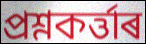
প্ৰশ্নকৰ্ত্তাৰ